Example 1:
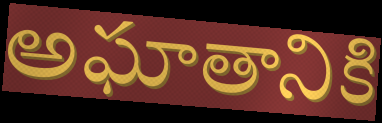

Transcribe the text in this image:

అఘాతానికి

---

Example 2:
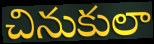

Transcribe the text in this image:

చినుకులా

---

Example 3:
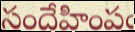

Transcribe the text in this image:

సందేహింపఁ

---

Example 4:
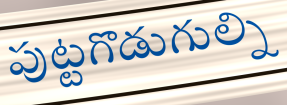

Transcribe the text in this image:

పుట్టగొడుగుల్ని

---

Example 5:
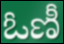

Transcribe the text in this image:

ఓణీ